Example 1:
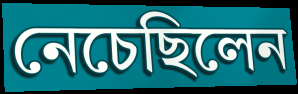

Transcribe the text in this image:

নেচেছিলেন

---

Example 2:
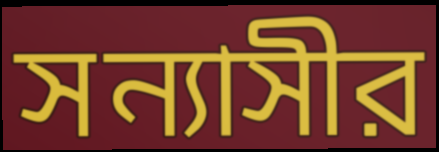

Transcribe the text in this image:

সন্যাসীর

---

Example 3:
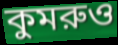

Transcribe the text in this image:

কুমরুও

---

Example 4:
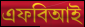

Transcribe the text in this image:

এফবিআই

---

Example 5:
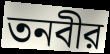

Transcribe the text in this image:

তনবীর